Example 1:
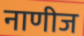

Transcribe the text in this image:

नाणीज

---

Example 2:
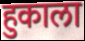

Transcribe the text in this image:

हुकाला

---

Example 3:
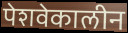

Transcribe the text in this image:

पेशवेकालीन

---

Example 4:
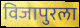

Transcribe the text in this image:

विजापुरला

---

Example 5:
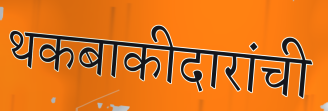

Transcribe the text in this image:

थकबाकीदारांची